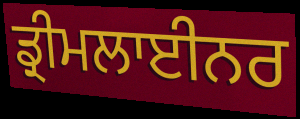
ਡ੍ਰੀਮਲਾਈਨਰ